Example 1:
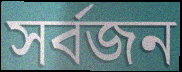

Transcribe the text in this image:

সৰ্বজন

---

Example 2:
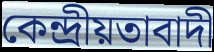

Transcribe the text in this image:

কেন্দ্ৰীয়তাবাদী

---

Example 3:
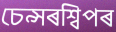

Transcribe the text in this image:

চেন্সৰশ্বিপৰ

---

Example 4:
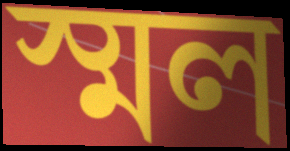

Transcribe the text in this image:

স্মল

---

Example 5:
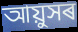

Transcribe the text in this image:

আয়ুসৰ